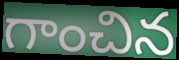
గాంచిన